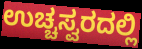
ಉಚ್ಚಸ್ವರದಲ್ಲಿ